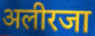
अलीरजा